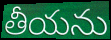
తీయను